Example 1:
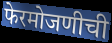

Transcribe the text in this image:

फेरमोजणीची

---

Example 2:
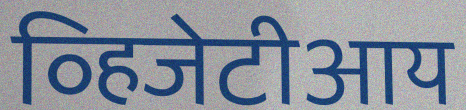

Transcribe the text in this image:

व्हिजेटीआय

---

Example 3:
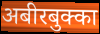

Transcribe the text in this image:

अबीरबुक्का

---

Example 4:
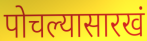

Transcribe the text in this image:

पोचल्यासारखं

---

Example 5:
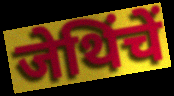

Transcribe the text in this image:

जेथिंचें